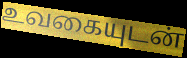
உவகையுடன்